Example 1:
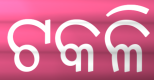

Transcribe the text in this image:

ଟକଳି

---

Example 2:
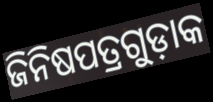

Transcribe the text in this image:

ଜିନିଷପତ୍ରଗୁଡ଼ାକ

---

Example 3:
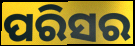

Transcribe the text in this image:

ପରିସର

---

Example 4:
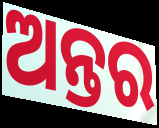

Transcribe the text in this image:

ଅନ୍ତର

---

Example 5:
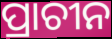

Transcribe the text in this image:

ପ୍ରାଚୀନ